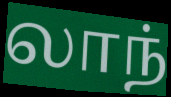
லாந்